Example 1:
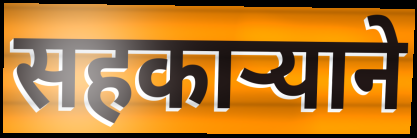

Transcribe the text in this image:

सहकाऱ्याने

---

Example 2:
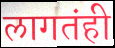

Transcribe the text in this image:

लागतंही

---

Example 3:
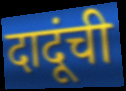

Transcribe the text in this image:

दादूंची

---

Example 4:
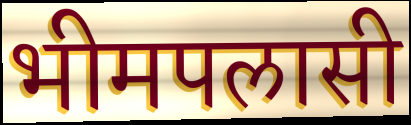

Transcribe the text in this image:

भीमपलासी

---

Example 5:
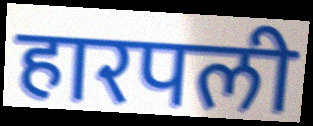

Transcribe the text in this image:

हारपली